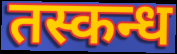
तस्कन्ध